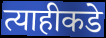
त्याहीकडे